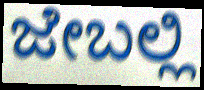
ಜೇಬಲ್ಲಿ